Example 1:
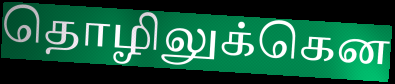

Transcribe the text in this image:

தொழிலுக்கென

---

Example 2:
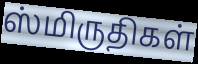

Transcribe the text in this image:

ஸ்மிருதிகள்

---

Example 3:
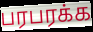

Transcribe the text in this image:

பரபரக்க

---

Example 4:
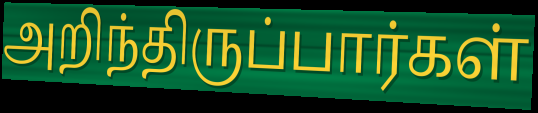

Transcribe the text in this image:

அறிந்திருப்பார்கள்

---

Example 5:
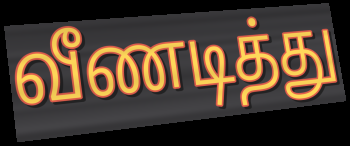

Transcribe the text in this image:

வீணடித்து